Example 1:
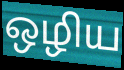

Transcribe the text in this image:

ஒழிய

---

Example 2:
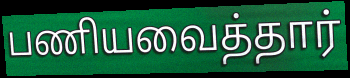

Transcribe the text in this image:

பணியவைத்தார்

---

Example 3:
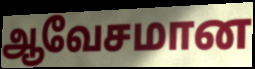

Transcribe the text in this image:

ஆவேசமான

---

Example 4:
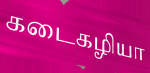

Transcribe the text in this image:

கடைகழியா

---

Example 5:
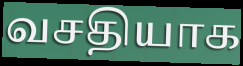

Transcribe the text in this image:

வசதியாக